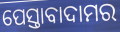
ପେସ୍ତାବାଦାମର